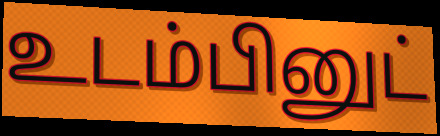
உடம்பினுட்